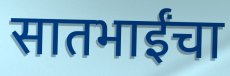
सातभाईंचा